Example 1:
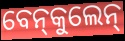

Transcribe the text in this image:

ବେନ୍‍କୁଲେନ୍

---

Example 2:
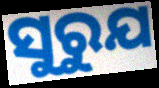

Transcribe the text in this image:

ସୁରୁଯ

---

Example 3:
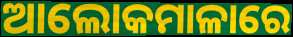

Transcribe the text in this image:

ଆଲୋକମାଳାରେ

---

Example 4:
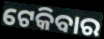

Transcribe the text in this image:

ଟେକିବାର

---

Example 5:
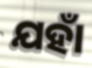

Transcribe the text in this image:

ଯହାଁ